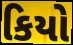
કિયો